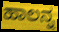
ಹಾಲನ್ನ